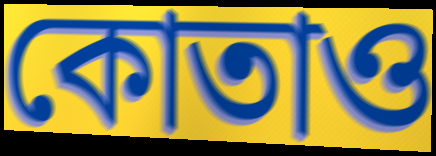
কোতাও